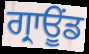
ਗ੍ਰਾਊਂਡ